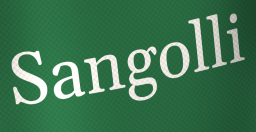
Sangolli